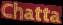
Chatta